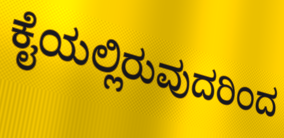
ಕೈಯಲ್ಲಿರುವುದರಿಂದ